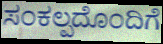
ಸಂಕಲ್ಪದೊಂದಿಗೆ